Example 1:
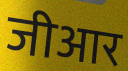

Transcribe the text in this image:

जीआर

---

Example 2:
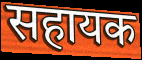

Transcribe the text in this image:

सहायक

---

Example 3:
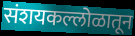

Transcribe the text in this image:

संशयकल्लोळातून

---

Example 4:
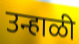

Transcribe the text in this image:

उन्हाळी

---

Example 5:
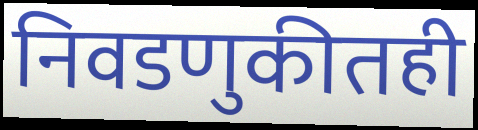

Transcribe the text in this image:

निवडणुकीतही